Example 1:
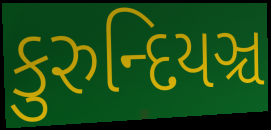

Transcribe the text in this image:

કુરુન્દિયઞ્ચ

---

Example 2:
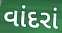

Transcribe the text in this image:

વાંદરાં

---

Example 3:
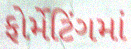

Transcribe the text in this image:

ફોર્મેટિંગમાં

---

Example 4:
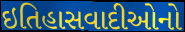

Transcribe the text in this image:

ઇતિહાસવાદીઓનો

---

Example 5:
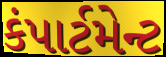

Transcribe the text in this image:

કંપાર્ટમેન્ટ